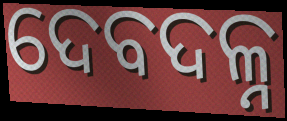
ଦେବଦଳ୍ନ